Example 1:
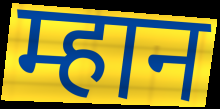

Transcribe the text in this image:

म्हान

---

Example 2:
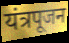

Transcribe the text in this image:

यंत्रपूजन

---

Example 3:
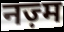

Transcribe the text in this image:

नज़्म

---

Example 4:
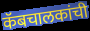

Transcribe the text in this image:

कॅबचालकांची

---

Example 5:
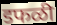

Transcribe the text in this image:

डफळी